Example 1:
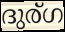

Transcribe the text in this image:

ദുര്ഗ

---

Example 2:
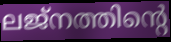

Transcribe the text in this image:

ലജ്നത്തിന്റെ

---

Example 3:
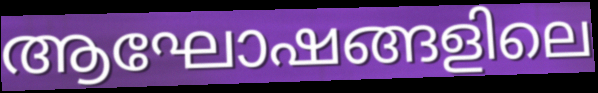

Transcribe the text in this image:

ആഘോഷങ്ങളിലെ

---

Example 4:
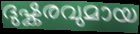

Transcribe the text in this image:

ദുഷ്കരവുമായ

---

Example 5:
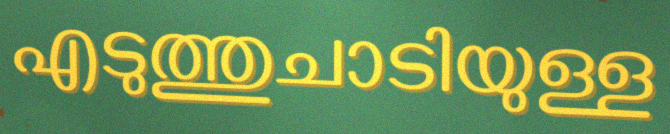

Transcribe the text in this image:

എടുത്തുചാടിയുള്ള